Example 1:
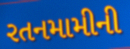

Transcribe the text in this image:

રતનમામીની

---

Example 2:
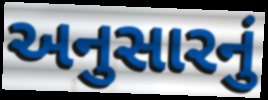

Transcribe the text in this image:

અનુસારનું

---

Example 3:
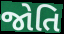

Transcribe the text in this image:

જોતિ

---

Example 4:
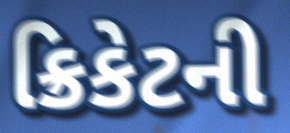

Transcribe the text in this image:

ક્રિકેટની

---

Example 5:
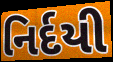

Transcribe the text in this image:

નિર્દયી